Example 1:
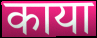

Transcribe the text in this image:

काया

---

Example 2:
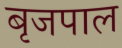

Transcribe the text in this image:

बृजपाल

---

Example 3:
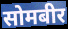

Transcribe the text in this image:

सोमबीर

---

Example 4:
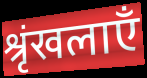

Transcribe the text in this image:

श्रृंखलाएँ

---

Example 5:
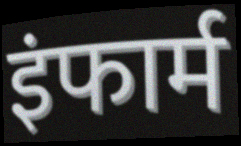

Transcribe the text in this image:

इंफार्म